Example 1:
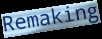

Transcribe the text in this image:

Remaking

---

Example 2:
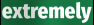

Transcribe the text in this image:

extremely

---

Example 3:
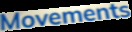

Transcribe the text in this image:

Movements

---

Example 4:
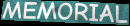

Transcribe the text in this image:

MEMORIAL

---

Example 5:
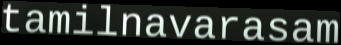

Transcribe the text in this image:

tamilnavarasam